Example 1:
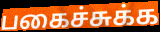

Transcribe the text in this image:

பகைச்சுக்க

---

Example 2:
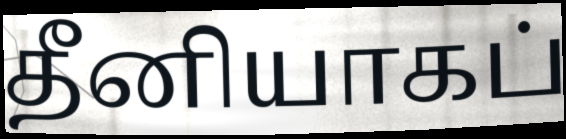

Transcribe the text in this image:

தீனியாகப்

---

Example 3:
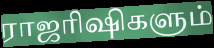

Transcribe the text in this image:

ராஜரிஷிகளும்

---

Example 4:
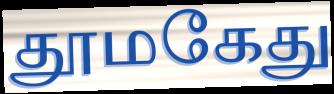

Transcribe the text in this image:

தூமகேது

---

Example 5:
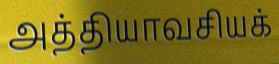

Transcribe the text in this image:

அத்தியாவசியக்